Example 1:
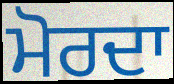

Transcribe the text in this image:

ਮੋਰਦਾ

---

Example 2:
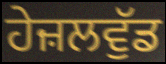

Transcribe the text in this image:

ਹੇਜ਼ਲਵੁੱਡ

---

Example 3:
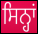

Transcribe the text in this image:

ਸਿਨ੍ਹਾਂ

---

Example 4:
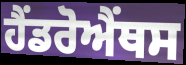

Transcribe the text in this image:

ਹੈਂਡਰੋਐਂਥਸ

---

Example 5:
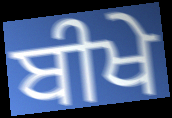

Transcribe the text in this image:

ਬੀਖੇ